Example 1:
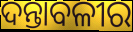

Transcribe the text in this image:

ଦନ୍ତାବଳୀର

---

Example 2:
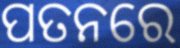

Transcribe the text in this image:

ପତନରେ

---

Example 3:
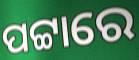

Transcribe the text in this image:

ପଟ୍ଟାରେ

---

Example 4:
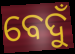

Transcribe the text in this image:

ବେଦୁଁ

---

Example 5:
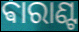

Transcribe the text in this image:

ଵାରାଣ୍ଟ